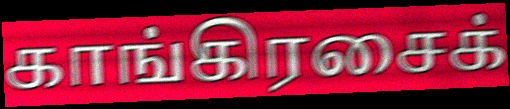
காங்கிரசைக்